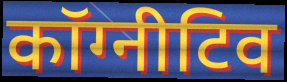
कॉग्नीटिव